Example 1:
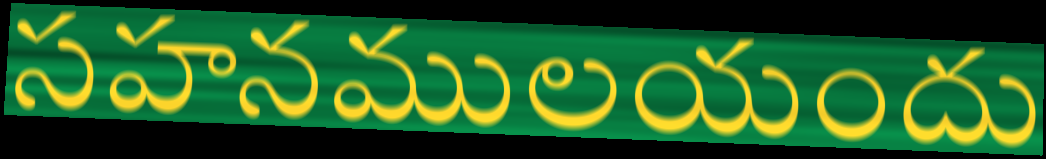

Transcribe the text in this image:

సహనములయందు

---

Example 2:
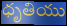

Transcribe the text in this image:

ధృతియు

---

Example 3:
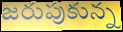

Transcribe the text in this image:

జరుపుకున్న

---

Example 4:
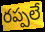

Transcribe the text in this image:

రప్పలే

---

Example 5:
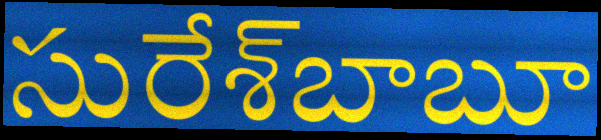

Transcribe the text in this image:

సురేశ్‌బాబూ